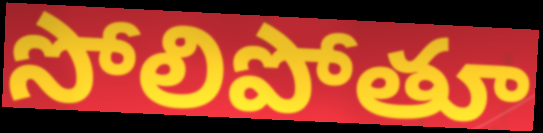
సోలిపోతూ